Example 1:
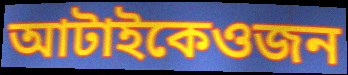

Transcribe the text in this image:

আটাইকেওজন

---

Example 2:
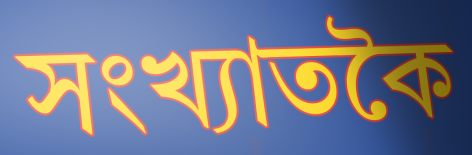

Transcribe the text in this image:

সংখ্যাতকৈ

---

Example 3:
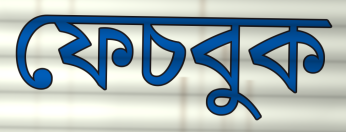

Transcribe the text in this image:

ফেচবুক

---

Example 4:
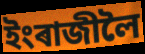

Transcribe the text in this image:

ইংৰাজীলৈ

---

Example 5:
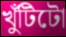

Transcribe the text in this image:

খুঁটিটো